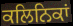
ਕਲਿਨਿਕਾਂ